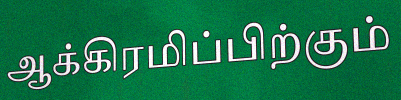
ஆக்கிரமிப்பிற்கும்